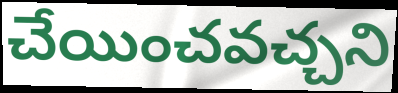
చేయించవచ్చని